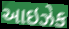
આઇઝેક